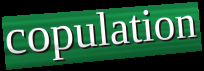
copulation